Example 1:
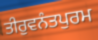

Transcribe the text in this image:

ਤੀਰੁਵਨੰਤਪੁਰਮ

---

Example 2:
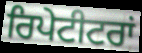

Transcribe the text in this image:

ਰਿਪੇਟੀਟਰਾਂ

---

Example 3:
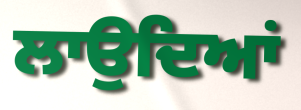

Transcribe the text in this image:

ਲਾਉਦਿਆਂ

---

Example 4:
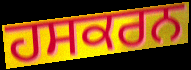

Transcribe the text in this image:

ਹਸਕਰਨ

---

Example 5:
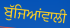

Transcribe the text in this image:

ਬੁੱਜਿਆਂਵਾਲੀ